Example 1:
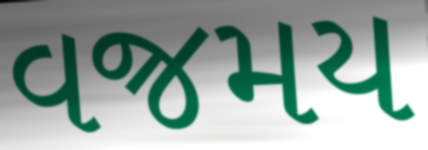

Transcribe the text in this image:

વજ્રમય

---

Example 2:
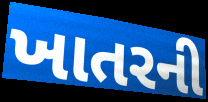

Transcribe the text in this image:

ખાતરની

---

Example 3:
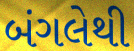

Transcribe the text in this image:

બંગલેથી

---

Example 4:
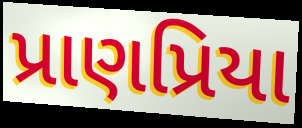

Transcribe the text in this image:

પ્રાણપ્રિયા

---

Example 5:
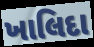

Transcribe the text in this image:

ખાલિદા